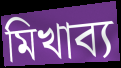
মিখাব্য